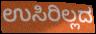
ಉಸಿರಿಲ್ಲದ